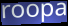
roopa